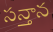
సన్తాన